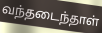
வந்தடைந்தாள்